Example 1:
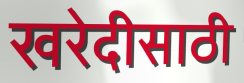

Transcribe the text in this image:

खरेदीसाठी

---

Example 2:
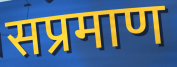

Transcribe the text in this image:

सप्रमाण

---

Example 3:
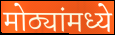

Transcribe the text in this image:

मोठ्यांमध्ये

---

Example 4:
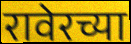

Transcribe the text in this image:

रावेरच्या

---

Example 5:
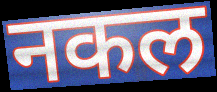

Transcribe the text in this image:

नकल